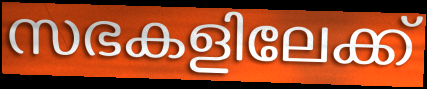
സഭകളിലേക്ക്